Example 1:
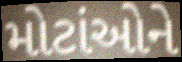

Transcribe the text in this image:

મોટાંઓને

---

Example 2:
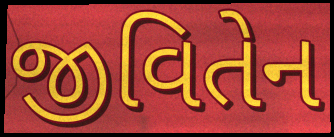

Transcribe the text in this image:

જીવિતેન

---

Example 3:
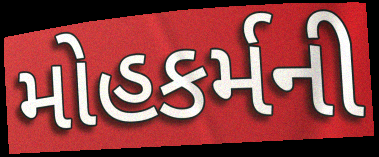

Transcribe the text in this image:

મોહકર્મની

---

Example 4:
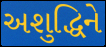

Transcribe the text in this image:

અશુદ્ધિને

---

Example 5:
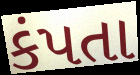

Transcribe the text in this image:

કંપતા